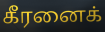
கீரனைக்